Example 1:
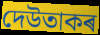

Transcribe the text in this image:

দেউতাকৰ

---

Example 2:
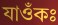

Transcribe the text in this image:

যাওঁকঃ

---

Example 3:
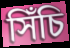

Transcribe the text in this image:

সিঁচি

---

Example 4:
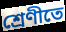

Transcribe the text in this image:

শ্ৰেণীতে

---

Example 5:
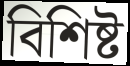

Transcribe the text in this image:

বিশিষ্ট